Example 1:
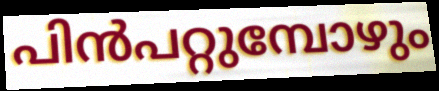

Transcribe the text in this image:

പിൻപറ്റുമ്പോഴും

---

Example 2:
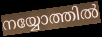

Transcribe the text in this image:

നയ്യോത്തിൽ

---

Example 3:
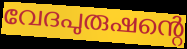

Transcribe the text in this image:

വേദപുരുഷന്റെ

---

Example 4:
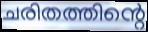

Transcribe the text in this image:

ചരിതത്തിന്റെ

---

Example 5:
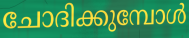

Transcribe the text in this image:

ചോദിക്കുമ്പോൾ